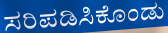
ಸರಿಪಡಿಸಿಕೊಂಡು